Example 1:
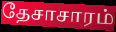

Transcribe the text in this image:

தேசாசாரம்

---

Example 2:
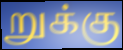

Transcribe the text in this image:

றுக்கு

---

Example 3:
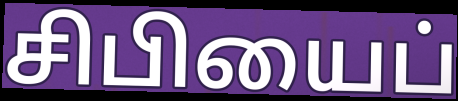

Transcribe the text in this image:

சிபியைப்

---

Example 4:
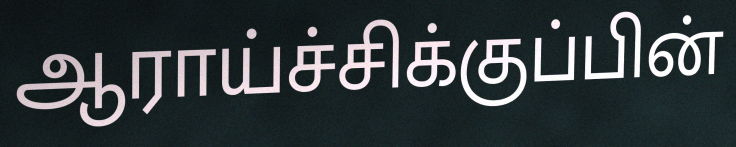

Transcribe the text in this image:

ஆராய்ச்சிக்குப்பின்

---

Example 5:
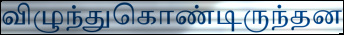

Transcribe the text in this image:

விழுந்துகொண்டிருந்தன